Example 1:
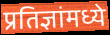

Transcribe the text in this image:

प्रतिज्ञांमध्ये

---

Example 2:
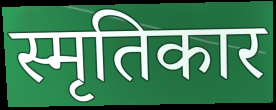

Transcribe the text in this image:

स्मृतिकार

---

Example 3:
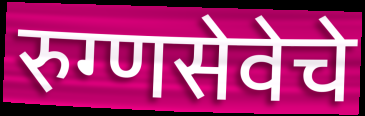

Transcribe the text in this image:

रुग्णसेवेचे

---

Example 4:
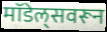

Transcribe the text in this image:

मॉडेल्सवरून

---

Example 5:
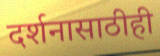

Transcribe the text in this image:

दर्शनासाठीही